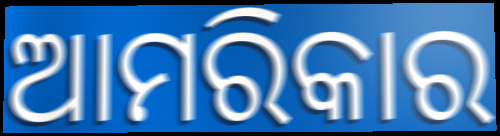
ଆମରିକାର